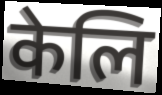
केलि